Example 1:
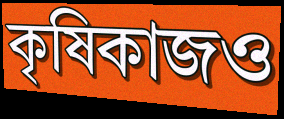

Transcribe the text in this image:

কৃষিকাজও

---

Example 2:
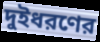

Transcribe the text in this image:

দুইধরণের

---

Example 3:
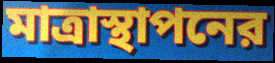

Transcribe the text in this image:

মাত্রাস্থাপনের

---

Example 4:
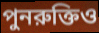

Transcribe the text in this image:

পুনরুক্তিও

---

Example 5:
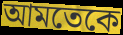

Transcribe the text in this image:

আমতেকে